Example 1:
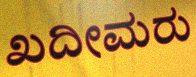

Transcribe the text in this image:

ಖದೀಮರು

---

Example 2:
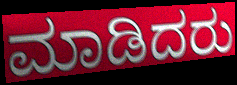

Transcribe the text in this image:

ಮಾಡಿದರು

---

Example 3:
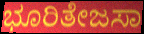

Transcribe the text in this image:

ಭೂರಿತೇಜಸಾ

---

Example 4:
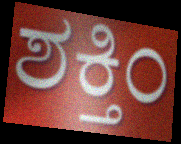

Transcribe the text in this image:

ಶಕ್ತಿಂ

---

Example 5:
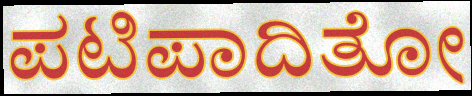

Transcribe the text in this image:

ಪಟಿಪಾದಿತೋ